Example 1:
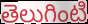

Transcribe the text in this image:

తెలుగింటి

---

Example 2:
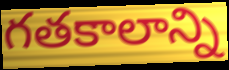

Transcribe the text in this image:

గతకాలాన్ని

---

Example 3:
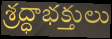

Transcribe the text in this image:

శ్రద్ధాభక్తులు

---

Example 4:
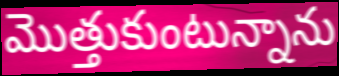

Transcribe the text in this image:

మొత్తుకుంటున్నాను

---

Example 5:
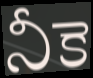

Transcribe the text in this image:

నీకె